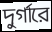
দুর্গারে